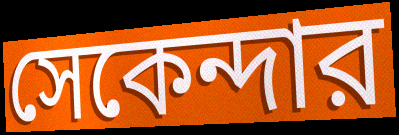
সেকেন্দার